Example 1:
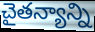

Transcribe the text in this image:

చైతన్యాన్ని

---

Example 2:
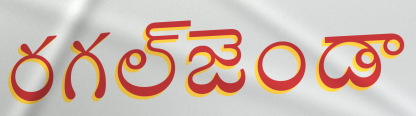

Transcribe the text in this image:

రగల్‌జెండా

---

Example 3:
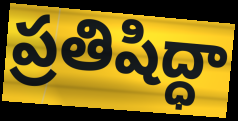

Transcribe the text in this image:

ప్రతిషిద్ధా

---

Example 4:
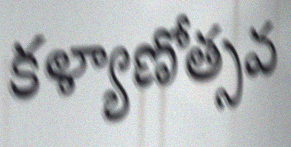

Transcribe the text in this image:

కళ్యాణోత్సవ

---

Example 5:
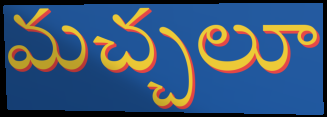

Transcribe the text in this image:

మచ్చలూ